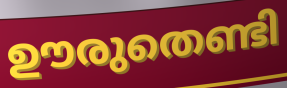
ഊരുതെണ്ടി